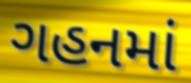
ગહનમાં